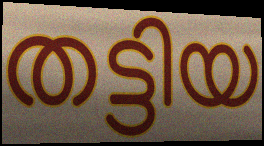
തട്ടിയ